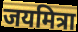
जयमित्रा